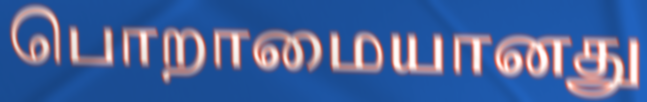
பொறாமையானது